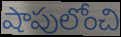
షాపులోంచి